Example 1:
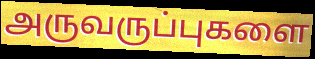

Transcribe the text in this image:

அருவருப்புகளை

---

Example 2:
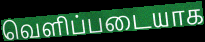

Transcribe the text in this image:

வெளிப்படையாக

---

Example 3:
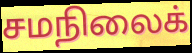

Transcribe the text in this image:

சமநிலைக்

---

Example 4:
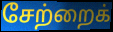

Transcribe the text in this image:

சேற்றைக்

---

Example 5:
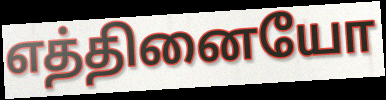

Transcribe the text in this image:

எத்தினையோ